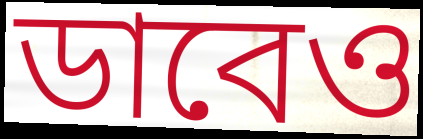
ডাবেও